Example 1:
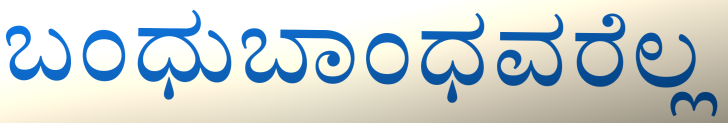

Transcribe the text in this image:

ಬಂಧುಬಾಂಧವರೆಲ್ಲ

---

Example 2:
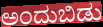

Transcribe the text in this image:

ಅಂದುಬಿಡು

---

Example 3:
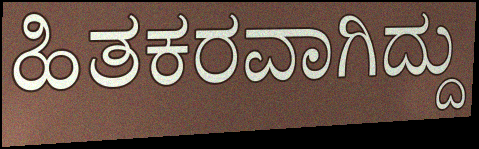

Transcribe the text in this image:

ಹಿತಕರವಾಗಿದ್ದು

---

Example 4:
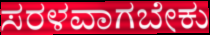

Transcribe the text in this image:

ಸರಳವಾಗಬೇಕು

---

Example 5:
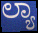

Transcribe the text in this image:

ಲ್ಯಾ